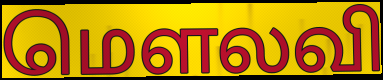
மௌலவி